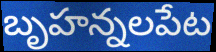
బృహన్నలపేట